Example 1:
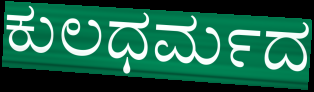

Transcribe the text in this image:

ಕುಲಧರ್ಮದ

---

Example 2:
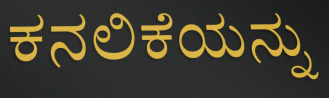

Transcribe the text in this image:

ಕನಲಿಕೆಯನ್ನು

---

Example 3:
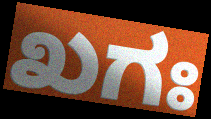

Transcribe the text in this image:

ಖಗಃ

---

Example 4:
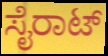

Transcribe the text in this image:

ಸೈರಾಟ್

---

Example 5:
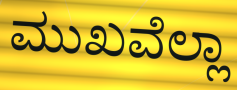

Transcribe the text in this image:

ಮುಖವೆಲ್ಲಾ